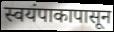
स्वयंपाकापासून